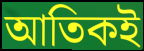
আতিকই